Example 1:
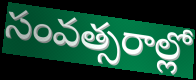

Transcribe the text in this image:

సంవత్సరాల్లో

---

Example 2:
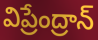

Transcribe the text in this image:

విప్రేంద్రాన్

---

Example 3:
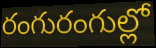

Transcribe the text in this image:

రంగురంగుల్లో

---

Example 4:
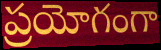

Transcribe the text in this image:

ప్రయోగంగా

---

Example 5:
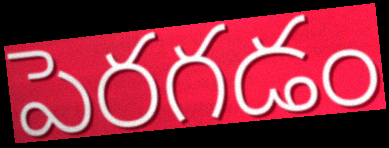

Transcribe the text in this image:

పెరగడం